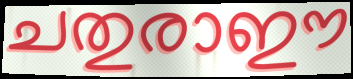
ചതുരാഈ